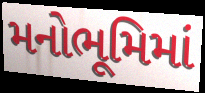
મનોભૂમિમાં